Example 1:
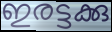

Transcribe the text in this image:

ഇരട്ടക്കു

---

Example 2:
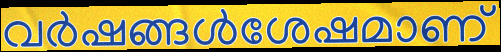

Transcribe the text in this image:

വർഷങ്ങൾശേഷമാണ്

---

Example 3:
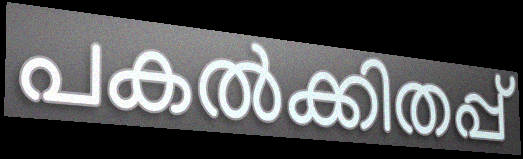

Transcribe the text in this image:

പകൽക്കിതപ്പ്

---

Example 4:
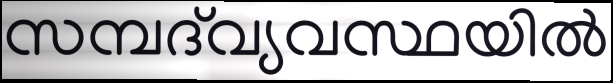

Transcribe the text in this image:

സമ്പദ്‌വ്യവസ്ഥയിൽ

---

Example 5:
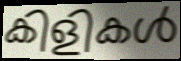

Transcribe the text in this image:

കിളികൾ